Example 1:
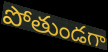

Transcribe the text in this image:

పోతుండగా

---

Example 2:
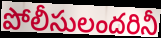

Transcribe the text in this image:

పోలీసులందరినీ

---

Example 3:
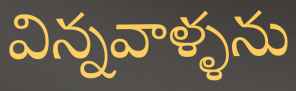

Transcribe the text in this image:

విన్నవాళ్ళను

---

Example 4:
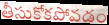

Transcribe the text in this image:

తీసుకోకపోవడం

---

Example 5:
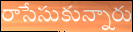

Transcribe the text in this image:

రాసేసుకున్నారు